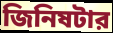
জিনিষটার